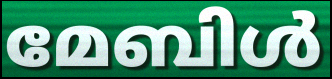
മേബിൾ